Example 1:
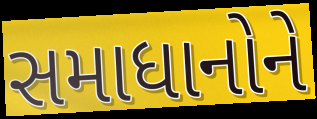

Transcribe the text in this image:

સમાધાનોને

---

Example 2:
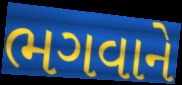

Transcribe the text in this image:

ભગવાને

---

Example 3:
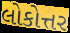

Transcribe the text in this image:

લોકોત્તર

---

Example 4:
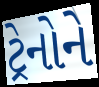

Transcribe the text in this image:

ટ્રેનોને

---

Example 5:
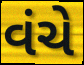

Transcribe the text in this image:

વંચે